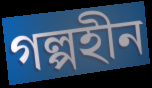
গল্পহীন